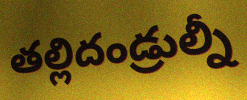
తల్లిదండ్రుల్నీ